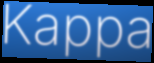
Kappa